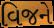
વિજને